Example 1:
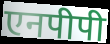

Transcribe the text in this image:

एनपीपी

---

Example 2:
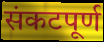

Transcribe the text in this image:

संकटपूर्ण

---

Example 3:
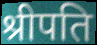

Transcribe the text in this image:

श्रीपति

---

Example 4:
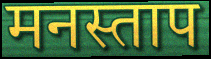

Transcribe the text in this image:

मनस्ताप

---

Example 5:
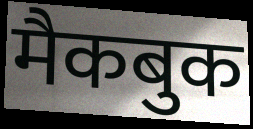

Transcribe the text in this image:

मैकबुक